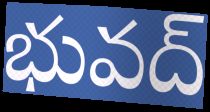
భువద్